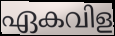
ഏകവിള